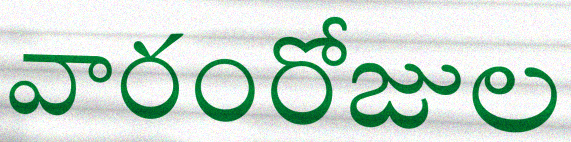
వారంరోజుల